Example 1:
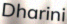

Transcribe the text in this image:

Dharini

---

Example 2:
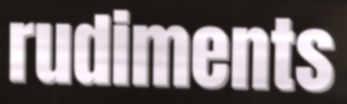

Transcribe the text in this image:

rudiments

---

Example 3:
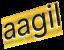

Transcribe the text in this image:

aagil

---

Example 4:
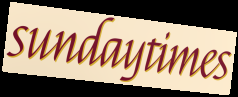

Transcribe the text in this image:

sundaytimes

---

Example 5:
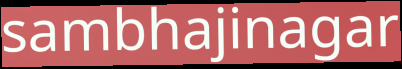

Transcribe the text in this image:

sambhajinagar